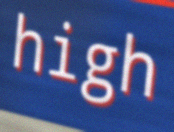
high